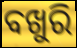
ବଖୁରି